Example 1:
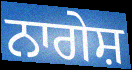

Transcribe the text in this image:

ਨਾਗੇਸ਼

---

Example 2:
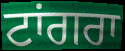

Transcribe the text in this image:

ਟਾਂਗਰਾ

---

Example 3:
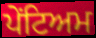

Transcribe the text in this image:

ਪੇਂਟਿਅਮ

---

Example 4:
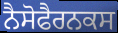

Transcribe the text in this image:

ਨੈਸੋਫੈਰਨਕਸ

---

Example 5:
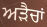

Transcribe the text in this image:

ਅੜੈਚਾਂ